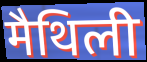
मैथिली